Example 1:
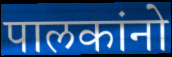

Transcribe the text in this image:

पालकांनो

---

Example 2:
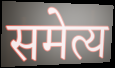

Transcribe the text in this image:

समेत्य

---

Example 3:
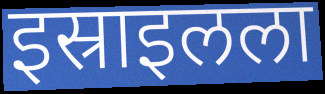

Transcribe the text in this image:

इस्राइलला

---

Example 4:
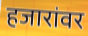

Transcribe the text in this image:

हजारांवर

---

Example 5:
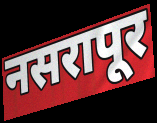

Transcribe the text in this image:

नसरापूर